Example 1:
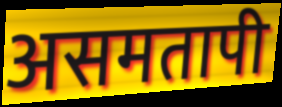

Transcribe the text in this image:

असमतापी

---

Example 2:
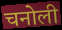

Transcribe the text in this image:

चनोली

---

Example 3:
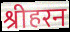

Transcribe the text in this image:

श्रीहरन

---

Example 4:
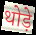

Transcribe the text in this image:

थोड़े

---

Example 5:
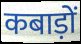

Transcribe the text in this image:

कबाड़ों